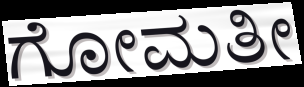
ಗೋಮತೀ